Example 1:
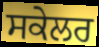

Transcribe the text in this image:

ਸਕੇਲਰ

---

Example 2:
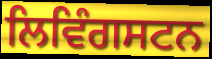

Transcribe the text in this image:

ਲਿਵਿੰਗਸਟਨ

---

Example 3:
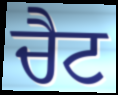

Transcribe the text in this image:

ਚੈਟ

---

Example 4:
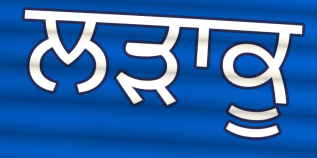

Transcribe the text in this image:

ਲੜਾਕੂ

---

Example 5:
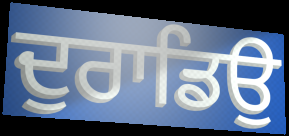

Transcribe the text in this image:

ਦੁਰਾਡਿਉ